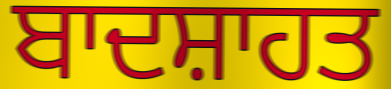
ਬਾਦਸ਼ਾਹਤ